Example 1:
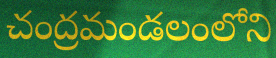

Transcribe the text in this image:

చంద్రమండలంలోని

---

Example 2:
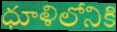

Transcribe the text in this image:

ధూళిలోనికి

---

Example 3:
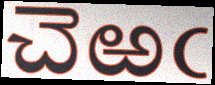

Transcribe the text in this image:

చెఱఁ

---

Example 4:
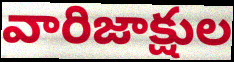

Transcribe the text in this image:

వారిజాక్షుల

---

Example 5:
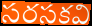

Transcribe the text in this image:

సరసకవి